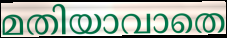
മതിയാവാതെ